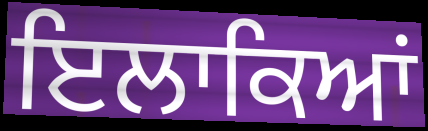
ਇਲਾਕਿਆਂ